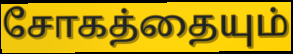
சோகத்தையும்